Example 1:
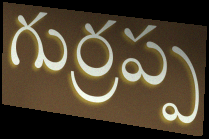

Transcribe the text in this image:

గుర్రప్ప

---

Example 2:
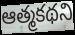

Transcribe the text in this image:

ఆత్మకథని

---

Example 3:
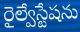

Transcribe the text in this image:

రైల్వేస్టేషను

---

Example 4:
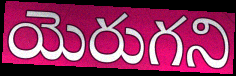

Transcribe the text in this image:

యెరుగని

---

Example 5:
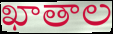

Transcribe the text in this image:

ఖాతాల